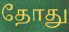
தோது